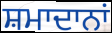
ਸ਼ਮਾਦਾਨਾਂ